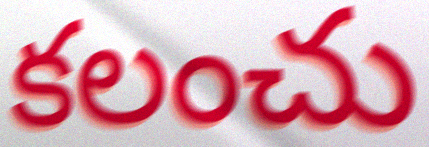
కలంచు